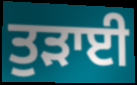
ਤੁੜਾਈ